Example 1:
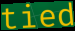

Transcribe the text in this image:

tied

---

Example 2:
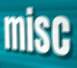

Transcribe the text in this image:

misc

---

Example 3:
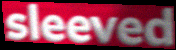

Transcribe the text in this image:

sleeved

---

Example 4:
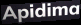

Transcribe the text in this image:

Apidima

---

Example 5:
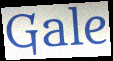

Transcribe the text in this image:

Gale